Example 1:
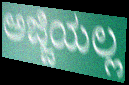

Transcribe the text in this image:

ಅಜ್ಜಿಯಲ್ಲ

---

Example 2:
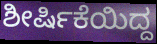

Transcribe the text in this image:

ಶೀರ್ಷಿಕೆಯಿದ್ದ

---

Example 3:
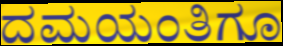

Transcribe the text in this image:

ದಮಯಂತಿಗೂ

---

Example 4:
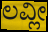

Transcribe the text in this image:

ಲವ್ಲೀ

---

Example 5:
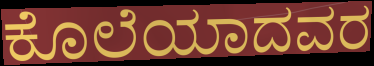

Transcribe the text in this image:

ಕೊಲೆಯಾದವರ